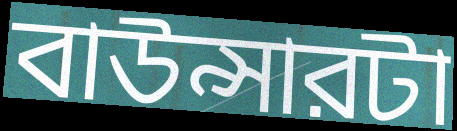
বাউন্সারটা